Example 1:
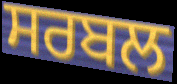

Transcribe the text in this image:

ਸਰਬਲ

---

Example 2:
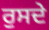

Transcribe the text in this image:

ਰੁਸਦੇ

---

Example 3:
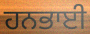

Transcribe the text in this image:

ਹਨਭਾਈ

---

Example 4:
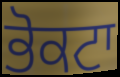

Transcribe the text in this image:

ਭੋਕਟਾ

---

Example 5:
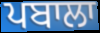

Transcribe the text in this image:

ਪਬਾਲਾ